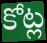
కోట్ల